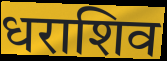
धराशिव